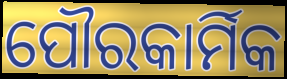
ପୌରକାର୍ମିକ